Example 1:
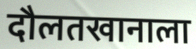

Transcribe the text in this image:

दौलतखानाला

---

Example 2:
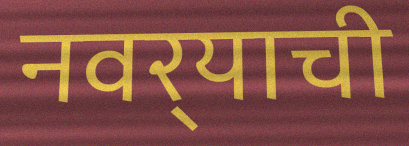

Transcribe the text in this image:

नवर्‍याची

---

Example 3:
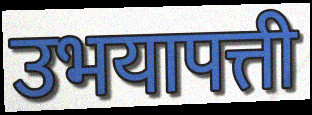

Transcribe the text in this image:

उभयापत्ती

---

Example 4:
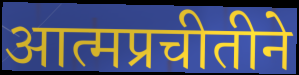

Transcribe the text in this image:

आत्मप्रचीतीने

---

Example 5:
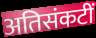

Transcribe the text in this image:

अतिसंकटीं